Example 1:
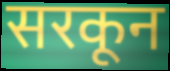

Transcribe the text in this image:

सरकून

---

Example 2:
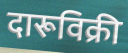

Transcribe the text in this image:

दारूविक्री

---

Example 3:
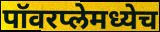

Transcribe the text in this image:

पॉवरप्लेमध्येच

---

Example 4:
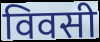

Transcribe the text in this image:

विवसी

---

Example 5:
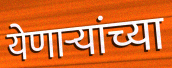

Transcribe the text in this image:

येणाऱ्यांच्या